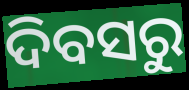
ଦିବସରୁ